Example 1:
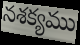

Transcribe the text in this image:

నశక్యము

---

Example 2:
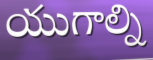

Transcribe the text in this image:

యుగాల్ని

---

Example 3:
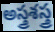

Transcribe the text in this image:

అస్త్రశస్త్ర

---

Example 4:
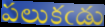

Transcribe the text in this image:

పలుకఁడు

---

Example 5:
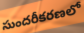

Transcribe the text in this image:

సుందరీకరణలో